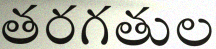
తరగతుల